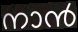
നാൻ